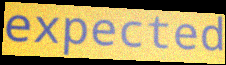
expected